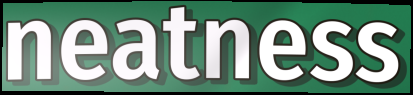
neatness